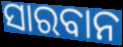
ସାରବାନ